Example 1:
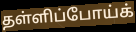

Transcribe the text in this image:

தள்ளிப்போய்க்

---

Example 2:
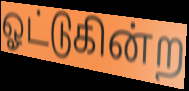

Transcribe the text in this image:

ஓட்டுகின்ற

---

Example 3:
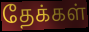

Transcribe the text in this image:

தேக்கள்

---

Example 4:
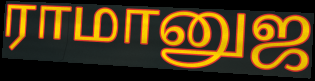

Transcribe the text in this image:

ராமானுஜ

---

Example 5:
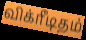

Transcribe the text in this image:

விக்ரீடிதம்